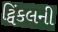
ટ્વિંકલની